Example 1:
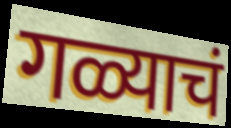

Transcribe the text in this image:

गळ्याचं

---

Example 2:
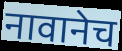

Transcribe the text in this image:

नावानेच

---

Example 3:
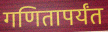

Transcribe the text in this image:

गणितापर्यंत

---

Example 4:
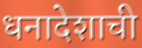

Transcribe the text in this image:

धनादेशाची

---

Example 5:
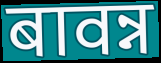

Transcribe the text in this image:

बावन्न